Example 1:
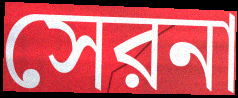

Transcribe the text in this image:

সেরনা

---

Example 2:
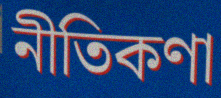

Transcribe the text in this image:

নীতিকণা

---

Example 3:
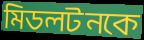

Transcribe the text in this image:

মিডলটনকে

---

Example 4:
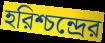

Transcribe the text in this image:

হরিশ্চন্দ্রের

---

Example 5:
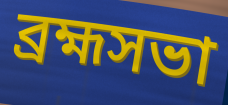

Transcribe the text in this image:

ব্রহ্মসভা